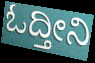
ಓದ್ತೀನಿ